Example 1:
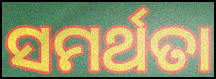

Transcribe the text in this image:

ସମର୍ଥତା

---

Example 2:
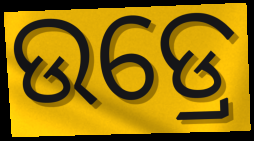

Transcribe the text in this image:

ଉଡ୍ରେ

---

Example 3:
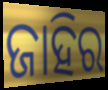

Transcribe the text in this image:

ଜାହିର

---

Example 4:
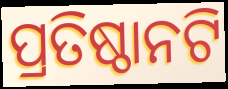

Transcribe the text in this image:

ପ୍ରତିଷ୍ଠାନଟି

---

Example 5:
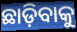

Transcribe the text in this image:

ଛାଡ଼ିବାକୁ